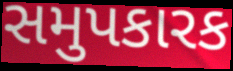
સમુપકારક